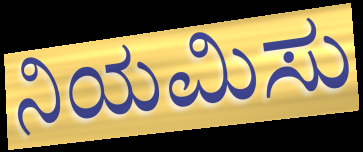
ನಿಯಮಿಸು